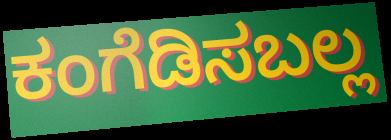
ಕಂಗೆಡಿಸಬಲ್ಲ